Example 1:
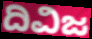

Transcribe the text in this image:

ದಿವಿಜ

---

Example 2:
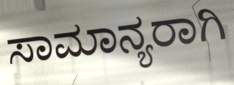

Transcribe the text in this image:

ಸಾಮಾನ್ಯರಾಗಿ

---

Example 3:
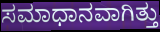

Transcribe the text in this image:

ಸಮಾಧಾನವಾಗಿತ್ತು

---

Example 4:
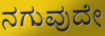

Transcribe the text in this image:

ನಗುವುದೇ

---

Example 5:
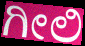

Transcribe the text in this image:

ಗೀಲಿ